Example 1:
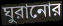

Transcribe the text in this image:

ঘুরানোর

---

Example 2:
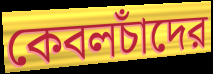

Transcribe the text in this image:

কেবলচাঁদের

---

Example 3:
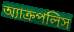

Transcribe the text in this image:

অ্যাক্রপলিস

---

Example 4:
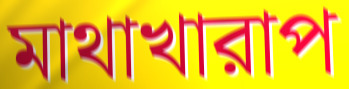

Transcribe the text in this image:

মাথাখারাপ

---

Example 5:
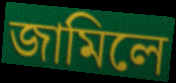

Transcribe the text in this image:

জামিলে